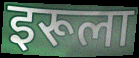
इरूला